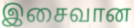
இசைவான